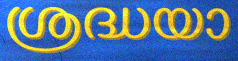
ശ്രദ്ധയാ